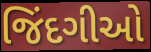
જિંદગીઓ